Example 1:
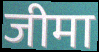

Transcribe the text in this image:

जीमा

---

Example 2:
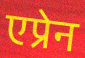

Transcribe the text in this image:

एप्रेन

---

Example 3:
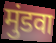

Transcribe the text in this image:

मुंडवा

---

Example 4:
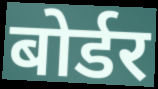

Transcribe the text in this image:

बोर्डर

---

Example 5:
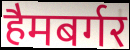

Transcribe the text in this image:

हैमबर्गर